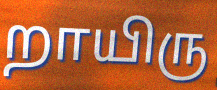
றாயிரு